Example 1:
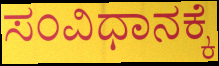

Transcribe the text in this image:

ಸಂವಿಧಾನಕ್ಕೆ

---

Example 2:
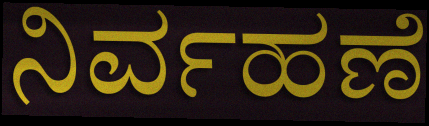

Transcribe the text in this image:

ನಿರ್ವಹಣೆ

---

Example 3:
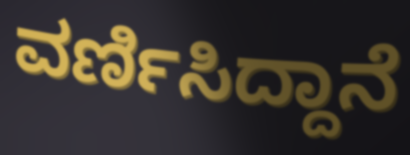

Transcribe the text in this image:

ವರ್ಣಿಸಿದ್ದಾನೆ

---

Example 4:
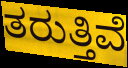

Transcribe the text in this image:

ತರುತ್ತಿವೆ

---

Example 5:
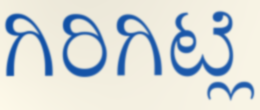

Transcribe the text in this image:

ಗಿರಿಗಿಟ್ಲೆ